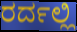
ರರ್ದಲ್ಲಿ